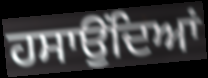
ਹਸਾਉਂਦਿਆਂ